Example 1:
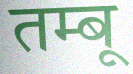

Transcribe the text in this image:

तम्‍बू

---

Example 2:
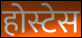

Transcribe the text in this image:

होस्टेस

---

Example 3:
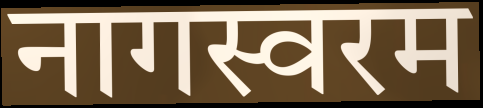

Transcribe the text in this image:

नागस्वरम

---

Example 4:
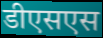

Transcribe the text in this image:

डीएसएस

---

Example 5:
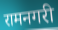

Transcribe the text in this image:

रामनगरी